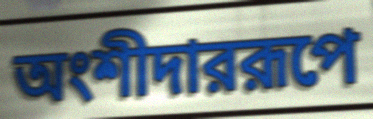
অংশীদাররূপে